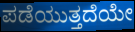
ಪಡೆಯುತ್ತದೆಯೇ